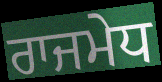
ਰਾਜਮੇਧ